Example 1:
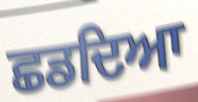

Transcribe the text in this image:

ਛਡਦਿਆ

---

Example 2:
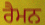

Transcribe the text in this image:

ਰੈਮਨ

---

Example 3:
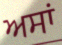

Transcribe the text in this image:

ਅਸਾਂ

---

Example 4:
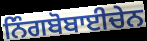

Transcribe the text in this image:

ਨਿੰਗਬੋਬਾਈਚੇਨ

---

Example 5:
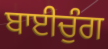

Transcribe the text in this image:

ਬਾਈਚੁੰਗ